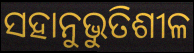
ସହାନୁଭୁତିଶୀଳ